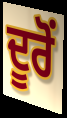
ਦੂਰੋਂ